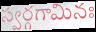
స్వర్గగామినః